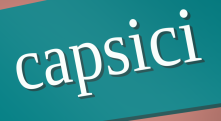
capsici